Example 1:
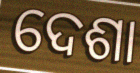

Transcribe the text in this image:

ଦେଶା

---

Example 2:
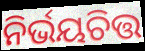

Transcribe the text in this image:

ନିର୍ଭୟଚିତ୍ତ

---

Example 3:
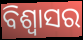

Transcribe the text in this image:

ବିଶ୍ବାସର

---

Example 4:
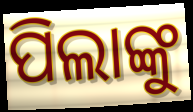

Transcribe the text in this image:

ପିଲାଙ୍କୁ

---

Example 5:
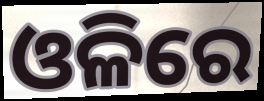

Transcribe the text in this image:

ଓଳିରେ